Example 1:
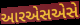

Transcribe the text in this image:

આરએસએસે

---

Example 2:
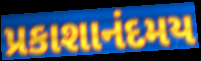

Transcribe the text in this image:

પ્રકાશાનંદમય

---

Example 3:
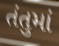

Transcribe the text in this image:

તંતુમાં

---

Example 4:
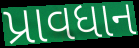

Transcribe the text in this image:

પ્રાવધાન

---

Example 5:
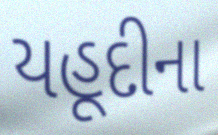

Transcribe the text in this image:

યહૂદીના